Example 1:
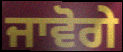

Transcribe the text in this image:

ਜਾਵੋਗੇ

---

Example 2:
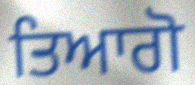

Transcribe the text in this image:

ਤਿਆਗੋ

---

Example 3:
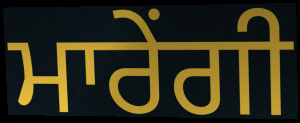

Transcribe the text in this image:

ਮਾਰੇਂਗੀ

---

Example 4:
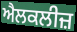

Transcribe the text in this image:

ਐਲਕਲੀਜ਼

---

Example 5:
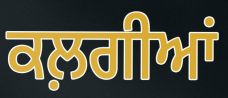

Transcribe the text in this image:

ਕਲ਼ਗੀਆਂ